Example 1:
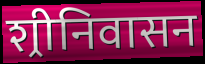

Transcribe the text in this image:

श्रीनिवासन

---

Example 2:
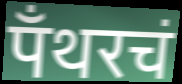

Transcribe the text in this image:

पँथरचं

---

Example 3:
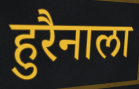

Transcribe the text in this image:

हुरैनाला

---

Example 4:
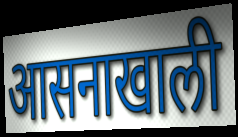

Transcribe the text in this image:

आसनाखाली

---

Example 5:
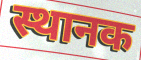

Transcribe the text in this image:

स्थानक